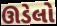
ઊડેલો